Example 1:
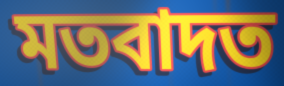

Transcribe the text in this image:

মতবাদত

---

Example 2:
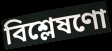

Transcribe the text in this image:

বিশ্লেষণো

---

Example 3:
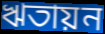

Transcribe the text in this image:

ঋতায়ন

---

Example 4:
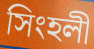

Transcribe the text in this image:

সিংহলী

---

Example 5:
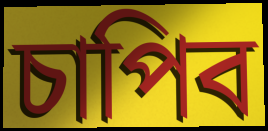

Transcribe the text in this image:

চাপিব